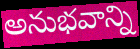
అనుభవాన్ని